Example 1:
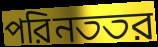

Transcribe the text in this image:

পরিনততর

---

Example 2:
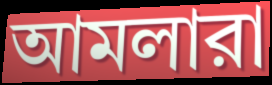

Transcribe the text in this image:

আমলারা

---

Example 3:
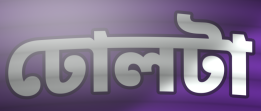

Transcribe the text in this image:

ঢোলটা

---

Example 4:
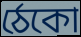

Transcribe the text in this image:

ঠেকো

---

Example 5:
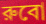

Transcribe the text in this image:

রুবো